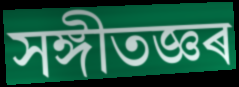
সঙ্গীতজ্ঞৰ